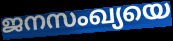
ജനസംഖ്യയെ